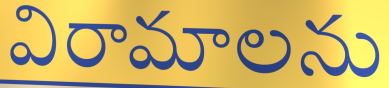
విరామాలను